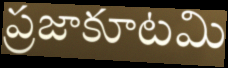
ప్రజాకూటమి